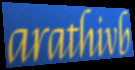
arathivb